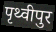
पृथ्वीपुर